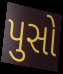
પુસો